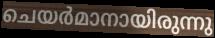
ചെയർമാനായിരുന്നു